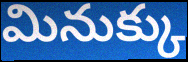
మినుక్కు